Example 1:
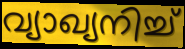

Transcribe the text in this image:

വ്യാഖ്യനിച്ച്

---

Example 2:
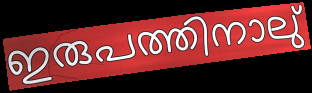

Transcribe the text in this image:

ഇരുപത്തിനാലു്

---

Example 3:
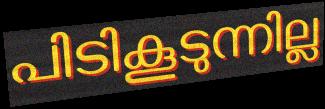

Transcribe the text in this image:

പിടികൂടുന്നില്ല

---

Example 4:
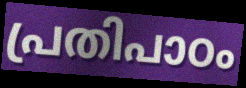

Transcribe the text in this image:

പ്രതിപാഠം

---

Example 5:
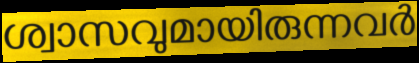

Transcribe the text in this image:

ശ്വാസവുമായിരുന്നവർ